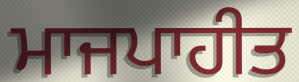
ਮਾਜਪਾਹੀਤ